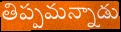
తిప్పమన్నాడు